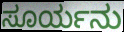
ಸೂರ್ಯನು